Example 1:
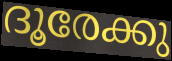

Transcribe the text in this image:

ദൂരേക്കു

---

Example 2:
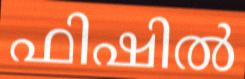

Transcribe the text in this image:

ഫിഷിൽ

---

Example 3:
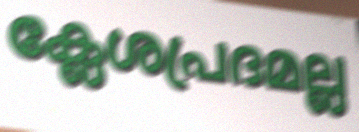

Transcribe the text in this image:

ക്ലേശപ്രദമല്ല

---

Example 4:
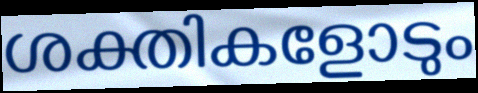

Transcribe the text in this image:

ശക്തികളോടും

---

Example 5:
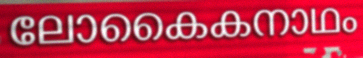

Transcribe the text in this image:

ലോകൈകനാഥം